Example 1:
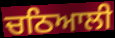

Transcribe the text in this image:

ਚਠਿਆਲੀ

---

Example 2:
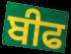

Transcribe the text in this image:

ਬੀਫ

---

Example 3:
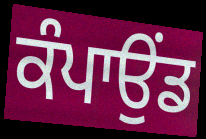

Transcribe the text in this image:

ਕੰਪਾਉਂਡ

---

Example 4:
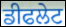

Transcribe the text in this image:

ਡੀਫਲੇਟ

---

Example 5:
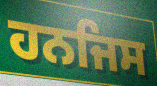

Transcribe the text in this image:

ਹਨਜਿਸ